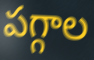
పగ్గాల